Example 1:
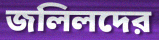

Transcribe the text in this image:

জলিলদের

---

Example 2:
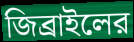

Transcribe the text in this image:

জিব্রাইলের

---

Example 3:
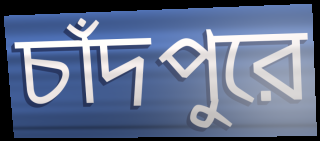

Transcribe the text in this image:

চাঁদপুরে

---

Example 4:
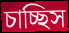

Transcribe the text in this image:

চাচ্ছিস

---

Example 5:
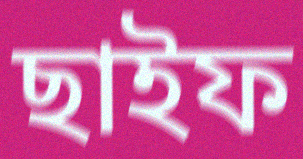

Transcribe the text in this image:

ছাইফ